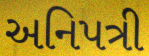
અનિપત્રી